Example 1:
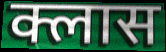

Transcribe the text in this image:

क्लास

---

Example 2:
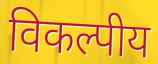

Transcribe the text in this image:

विकल्पीय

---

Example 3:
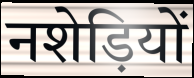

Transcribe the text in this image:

नशेड़ियों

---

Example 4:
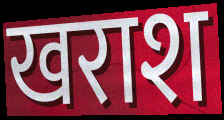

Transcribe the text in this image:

खराश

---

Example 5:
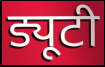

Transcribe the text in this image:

ड्यूटी